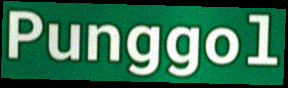
Punggol